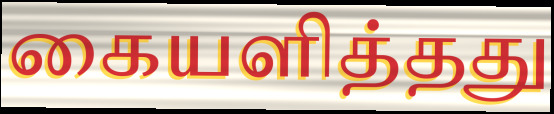
கையளித்தது